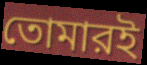
তোমারই